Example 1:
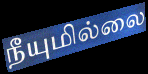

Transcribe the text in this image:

நீயுமில்லை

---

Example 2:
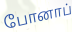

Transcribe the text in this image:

போனாப்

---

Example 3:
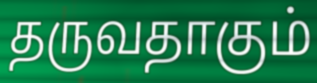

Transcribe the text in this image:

தருவதாகும்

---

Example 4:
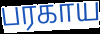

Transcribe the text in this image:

பரகாய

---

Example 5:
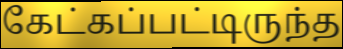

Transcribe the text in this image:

கேட்கப்பட்டிருந்த